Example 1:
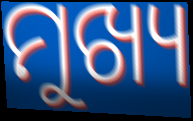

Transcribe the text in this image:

ମୁଖ୍ୟ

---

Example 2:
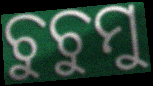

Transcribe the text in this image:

ଚୁଚୁମୁ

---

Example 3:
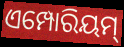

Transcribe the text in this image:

ଏମ୍ପୋରିୟମ୍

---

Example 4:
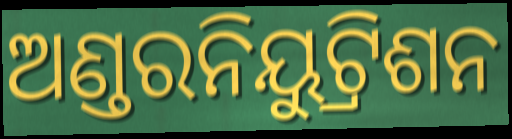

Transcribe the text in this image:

ଅଣ୍ଡରନିୟୁଟ୍ରିଶନ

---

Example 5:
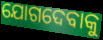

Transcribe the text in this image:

ଯୋଗଦେବାକୁ